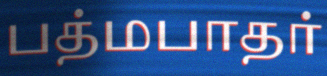
பத்மபாதர்